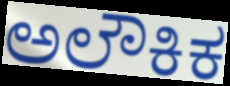
ಅಲೌಕಿಕ